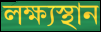
লক্ষ্যস্থান